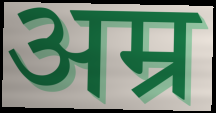
अम्र